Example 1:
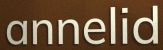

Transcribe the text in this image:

annelid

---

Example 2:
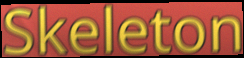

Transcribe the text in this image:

Skeleton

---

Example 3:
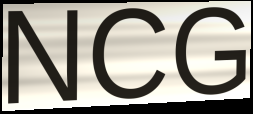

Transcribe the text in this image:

NCG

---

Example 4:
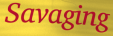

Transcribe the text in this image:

Savaging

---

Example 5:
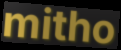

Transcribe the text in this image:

mitho